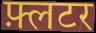
फ़्लटर